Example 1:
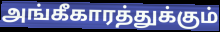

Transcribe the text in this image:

அங்கீகாரத்துக்கும்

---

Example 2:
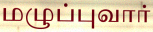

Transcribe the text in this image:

மழுப்புவார்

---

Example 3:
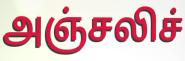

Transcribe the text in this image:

அஞ்சலிச்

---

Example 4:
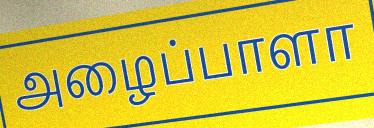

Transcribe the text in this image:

அழைப்பாளா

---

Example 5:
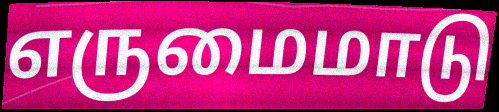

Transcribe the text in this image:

எருமைமாடு